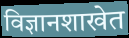
विज्ञानशाखेत